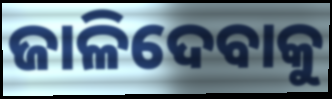
ଜାଳିଦେବାକୁ